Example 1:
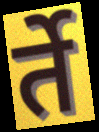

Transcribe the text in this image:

र्ते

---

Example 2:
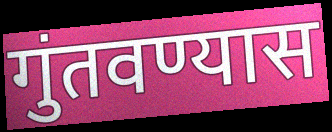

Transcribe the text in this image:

गुंतवण्यास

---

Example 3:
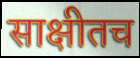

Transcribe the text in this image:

साक्षीतच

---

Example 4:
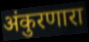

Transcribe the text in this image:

अंकुरणारा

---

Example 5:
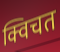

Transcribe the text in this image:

क्विचत